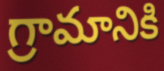
గ్రామానికి